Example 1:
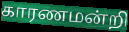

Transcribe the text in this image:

காரணமன்றி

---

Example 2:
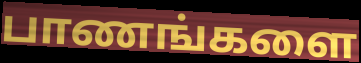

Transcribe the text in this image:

பாணங்களை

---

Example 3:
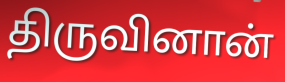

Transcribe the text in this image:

திருவினான்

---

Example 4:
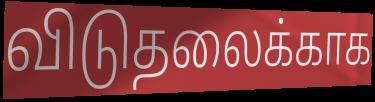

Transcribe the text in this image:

விடுதலைக்காக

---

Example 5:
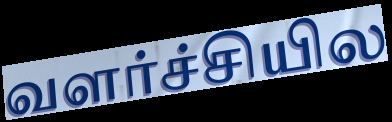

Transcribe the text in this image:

வளர்ச்சியில